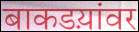
बाकडय़ांवर